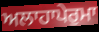
ਅਲਾਹਾਪੇਰੁਮਾ